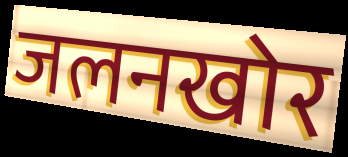
जलनखोर